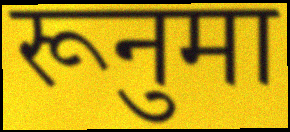
रूनुमा